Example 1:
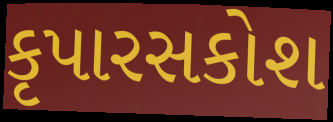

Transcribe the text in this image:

કૃપારસકોશ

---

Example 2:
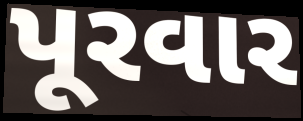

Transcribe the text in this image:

પૂરવાર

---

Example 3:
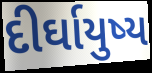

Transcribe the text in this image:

દીર્ઘાયુષ્ય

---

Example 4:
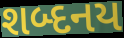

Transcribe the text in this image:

શબ્દનય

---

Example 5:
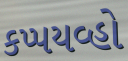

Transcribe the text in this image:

કપ્પયવ્હો